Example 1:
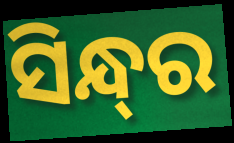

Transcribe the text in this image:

ସିନ୍ଧ୍‌ର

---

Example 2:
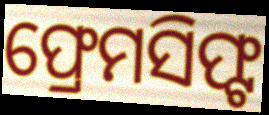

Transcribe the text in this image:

ଫ୍ରେମସିଫ୍ଟ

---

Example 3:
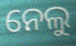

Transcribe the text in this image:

ନେଲୁ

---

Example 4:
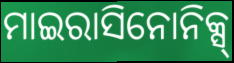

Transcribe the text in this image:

ମାଇରାସିନୋନିକ୍ସ୍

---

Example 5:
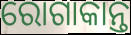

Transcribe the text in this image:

ରୋଗାକାନ୍ତ